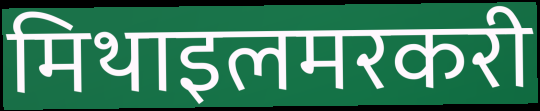
मिथाइलमरकरी